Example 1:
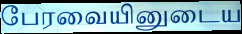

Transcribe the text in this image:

பேரவையினுடைய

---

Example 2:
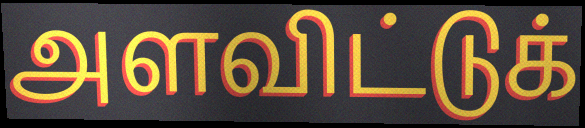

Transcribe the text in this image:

அளவிட்டுக்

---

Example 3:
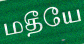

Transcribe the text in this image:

மதீயே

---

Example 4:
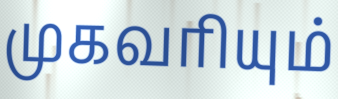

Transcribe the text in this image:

முகவரியும்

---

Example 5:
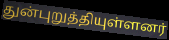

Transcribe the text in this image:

துன்புறுத்தியுள்ளனர்